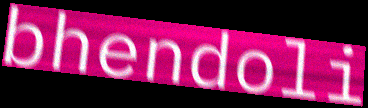
bhendoli